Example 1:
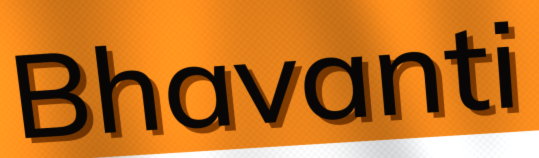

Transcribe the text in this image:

Bhavanti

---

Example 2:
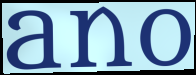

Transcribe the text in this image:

ano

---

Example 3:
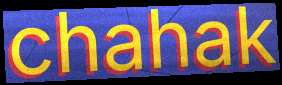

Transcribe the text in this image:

chahak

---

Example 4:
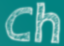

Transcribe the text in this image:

Ch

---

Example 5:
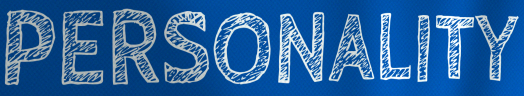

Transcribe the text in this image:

PERSONALITY